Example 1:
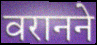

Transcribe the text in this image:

वरानने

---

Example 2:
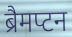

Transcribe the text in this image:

ब्रैमप्टन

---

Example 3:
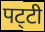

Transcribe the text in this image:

पट्‌टी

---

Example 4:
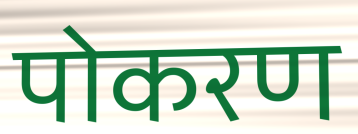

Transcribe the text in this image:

पोकरण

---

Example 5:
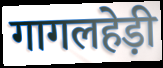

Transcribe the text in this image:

गागलहेड़ी